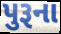
પુરૂના